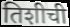
तिशीची